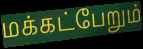
மக்கட்பேறும்